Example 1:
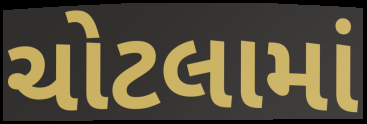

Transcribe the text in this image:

ચોટલામાં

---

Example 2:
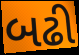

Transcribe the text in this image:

બઢી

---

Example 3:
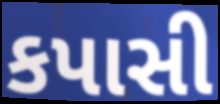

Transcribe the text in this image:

કપાસી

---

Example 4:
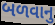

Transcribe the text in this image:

બળવાનુ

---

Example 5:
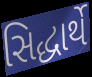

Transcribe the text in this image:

સિદ્ધાર્થે